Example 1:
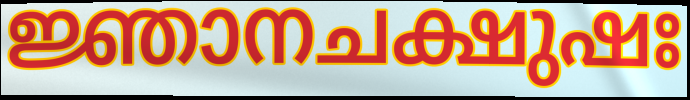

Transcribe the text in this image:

ജ്ഞാനചക്ഷുഷഃ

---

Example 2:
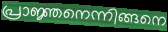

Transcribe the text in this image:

പ്രാജ്ഞനെന്നിങ്ങനെ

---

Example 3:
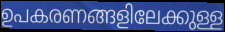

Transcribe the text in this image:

ഉപകരണങ്ങളിലേക്കുള്ള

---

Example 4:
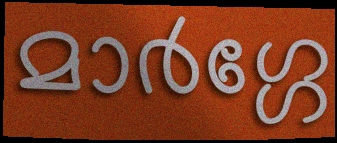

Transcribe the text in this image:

മാർഗ്ഗേ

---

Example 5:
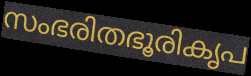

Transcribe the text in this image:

സംഭരിതഭൂരികൃപ